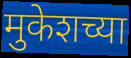
मुकेशच्या